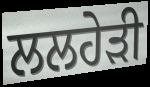
ਲਲਹੇੜੀ